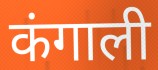
कंगाली